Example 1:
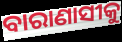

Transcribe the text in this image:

ବାରାଣାସୀକୁ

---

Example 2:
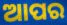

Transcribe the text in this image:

ଆପର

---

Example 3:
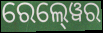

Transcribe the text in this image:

ରେଲ୍‍ୱେର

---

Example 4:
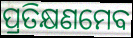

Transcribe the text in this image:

ପ୍ରତିକ୍ଷଣମେବ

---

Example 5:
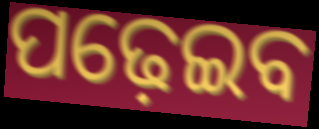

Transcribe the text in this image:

ପଢ଼େଇବ